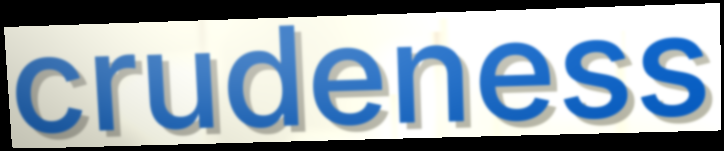
crudeness